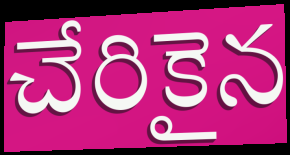
చేరికైన